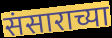
संसाराच्या